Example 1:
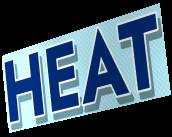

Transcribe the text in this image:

HEAT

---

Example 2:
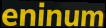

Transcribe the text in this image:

eninum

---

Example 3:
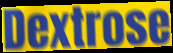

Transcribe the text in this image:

Dextrose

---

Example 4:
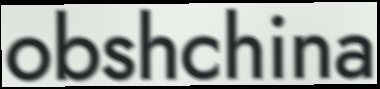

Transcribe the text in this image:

obshchina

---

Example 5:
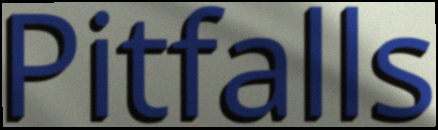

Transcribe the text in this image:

Pitfalls